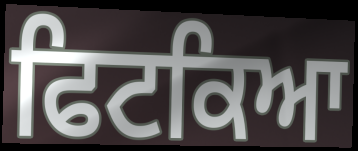
ਫਿਟਕਿਆ